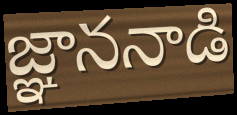
జ్ఞాననాడి